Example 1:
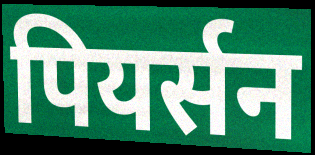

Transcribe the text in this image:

पियर्सन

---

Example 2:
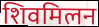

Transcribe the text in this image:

शिवमिलन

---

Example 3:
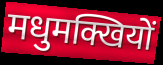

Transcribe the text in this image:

मधुमक्खियों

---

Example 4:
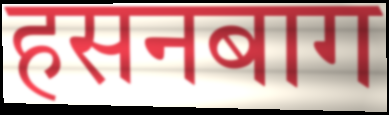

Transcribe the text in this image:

हसनबाग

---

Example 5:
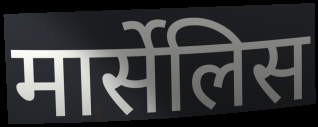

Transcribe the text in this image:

मार्सेलिस